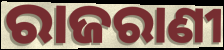
ରାଜରାଣୀ